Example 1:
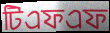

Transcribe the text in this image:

টিএফএফ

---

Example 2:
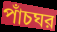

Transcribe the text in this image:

পাঁচঘর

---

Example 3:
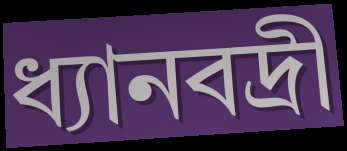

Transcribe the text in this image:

ধ্যানবদ্রী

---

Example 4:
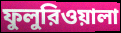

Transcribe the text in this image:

ফুলুরিওয়ালা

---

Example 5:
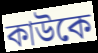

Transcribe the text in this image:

কাউকে